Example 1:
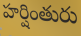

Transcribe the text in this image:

హర్షింతురు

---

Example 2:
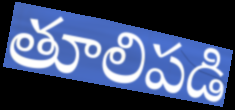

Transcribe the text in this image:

తూలిపడి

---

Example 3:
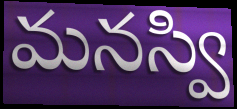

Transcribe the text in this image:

మనస్వి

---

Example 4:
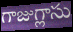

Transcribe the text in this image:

గాజుగ్లాసు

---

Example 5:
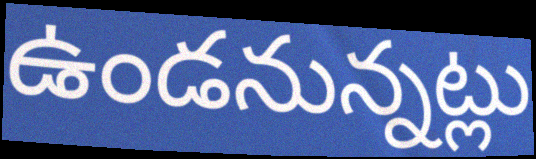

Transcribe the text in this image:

ఉండనున్నట్లు